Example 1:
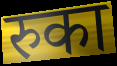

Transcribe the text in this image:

रुका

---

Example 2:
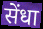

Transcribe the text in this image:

सेंधा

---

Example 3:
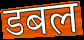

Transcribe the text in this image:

डबल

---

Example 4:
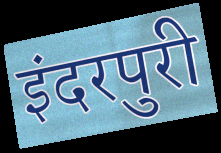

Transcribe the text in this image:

इंदरपुरी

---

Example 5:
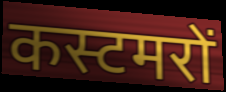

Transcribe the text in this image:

कस्टमरों